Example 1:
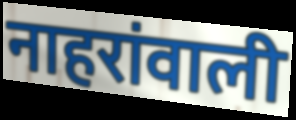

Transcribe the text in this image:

नाहरांवाली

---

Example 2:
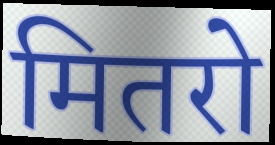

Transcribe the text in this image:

मितरो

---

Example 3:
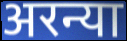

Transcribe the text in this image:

अरन्या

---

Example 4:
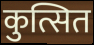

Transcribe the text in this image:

कुत्सित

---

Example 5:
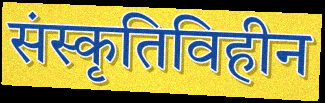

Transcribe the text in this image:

संस्कृतिविहीन